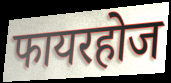
फायरहोज